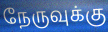
நேருவுக்கு